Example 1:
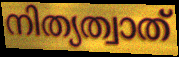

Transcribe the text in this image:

നിത്യത്വാത്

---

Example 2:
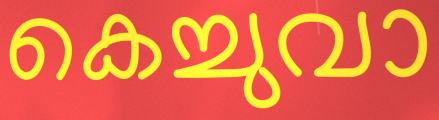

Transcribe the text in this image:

കെച്ചുവാ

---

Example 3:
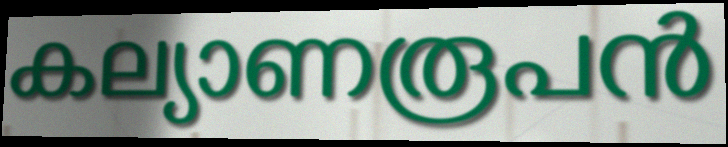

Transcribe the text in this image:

കല്യാണരൂപൻ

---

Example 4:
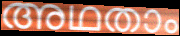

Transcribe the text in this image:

അഥതാം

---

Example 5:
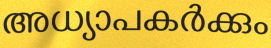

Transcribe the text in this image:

അധ്യാപകർക്കും